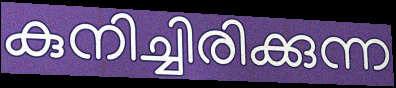
കുനിച്ചിരിക്കുന്ന